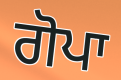
ਗੋਪਾ